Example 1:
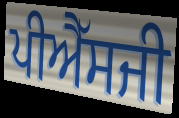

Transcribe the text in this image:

ਪੀਐੱਸਜੀ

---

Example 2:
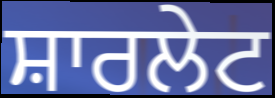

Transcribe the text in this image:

ਸ਼ਾਰਲੇਟ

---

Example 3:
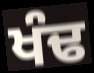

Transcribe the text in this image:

ਖੰਢ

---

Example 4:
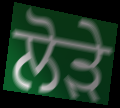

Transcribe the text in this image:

ਲੋੜੇ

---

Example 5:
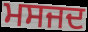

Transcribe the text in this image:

ਮਸਜਦ